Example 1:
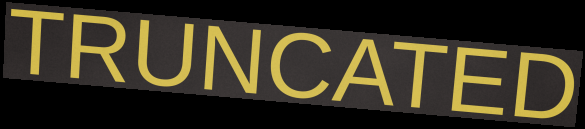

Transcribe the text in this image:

TRUNCATED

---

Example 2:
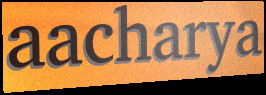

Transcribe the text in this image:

aacharya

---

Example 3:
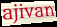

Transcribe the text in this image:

ajivan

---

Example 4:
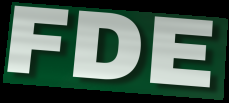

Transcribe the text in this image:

FDE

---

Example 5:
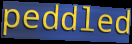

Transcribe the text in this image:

peddled